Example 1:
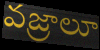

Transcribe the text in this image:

వజ్రాలూ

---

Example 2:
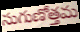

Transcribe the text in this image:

సుగుణోత్తమ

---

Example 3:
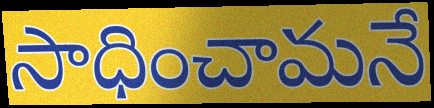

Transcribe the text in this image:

సాధించామనే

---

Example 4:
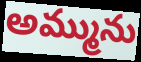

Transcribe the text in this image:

అమ్మును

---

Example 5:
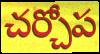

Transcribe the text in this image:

చర్చోప